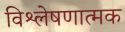
विश्लेषणात्मक